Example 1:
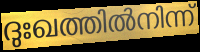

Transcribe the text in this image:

ദുഃഖത്തിൽനിന്ന്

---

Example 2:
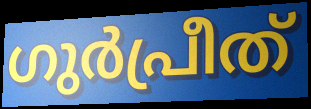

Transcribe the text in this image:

ഗുർപ്രീത്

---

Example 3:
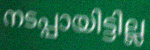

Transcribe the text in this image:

നടപ്പായിട്ടില്ല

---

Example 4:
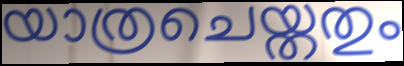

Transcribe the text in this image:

യാത്രചെയ്തതും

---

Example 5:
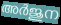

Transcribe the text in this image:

അർജുന